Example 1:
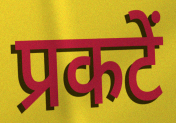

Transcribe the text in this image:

प्रकटें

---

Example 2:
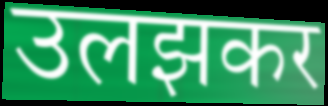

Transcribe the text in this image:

उलझकर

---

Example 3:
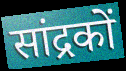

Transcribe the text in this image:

सांद्रकों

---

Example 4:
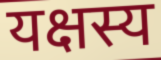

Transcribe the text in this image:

यक्षस्य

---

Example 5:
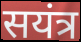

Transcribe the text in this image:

सयंत्र